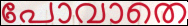
പോവാതെ